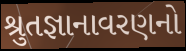
શ્રુતજ્ઞાનાવરણનો